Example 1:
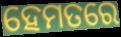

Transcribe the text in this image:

ହେମତରେ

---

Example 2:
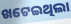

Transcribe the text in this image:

ଖଟେଇଥିଲା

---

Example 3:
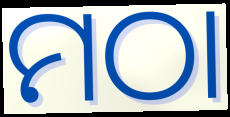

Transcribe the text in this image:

ମଠା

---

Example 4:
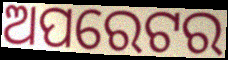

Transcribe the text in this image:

ଅପରେଟର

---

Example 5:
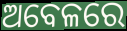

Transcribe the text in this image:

ଅବେଳରେ